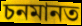
চনমানত